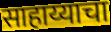
साहाय्याचा